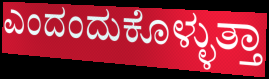
ಎಂದಂದುಕೊಳ್ಳುತ್ತಾ